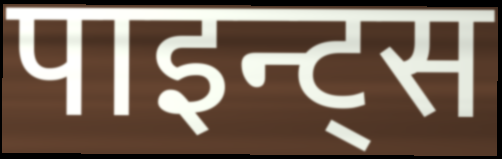
पाइन्ट्स